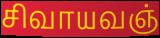
சிவாயவஞ்